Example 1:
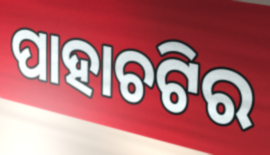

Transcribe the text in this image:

ପାହାଚଟିର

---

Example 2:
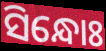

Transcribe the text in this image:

ସିନ୍ଧୋଃ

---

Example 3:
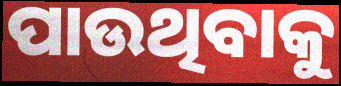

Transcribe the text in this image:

ପାଉଥିବାକୁ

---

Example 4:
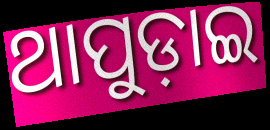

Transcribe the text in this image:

ଥାପୁଡ଼ାଇ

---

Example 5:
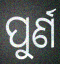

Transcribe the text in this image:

ପୁର୍ଣ